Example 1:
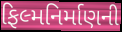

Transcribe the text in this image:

ફિલ્મનિર્માણની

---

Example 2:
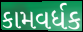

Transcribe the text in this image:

કામવર્ધક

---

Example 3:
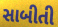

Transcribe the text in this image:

સાબીતી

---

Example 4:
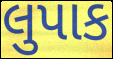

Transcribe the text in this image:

લુપાક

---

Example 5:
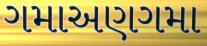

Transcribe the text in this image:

ગમાઅણગમા